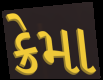
ક્રેમા